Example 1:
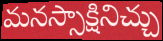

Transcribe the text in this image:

మనస్సాక్షినిచ్చు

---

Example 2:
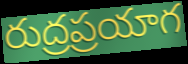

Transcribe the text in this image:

రుద్రప్రయాగ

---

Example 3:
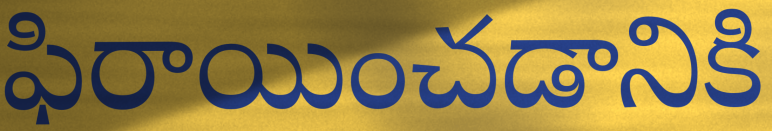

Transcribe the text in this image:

ఫిరాయించడానికి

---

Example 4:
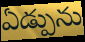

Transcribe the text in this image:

ఏడ్పును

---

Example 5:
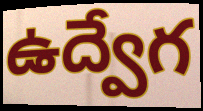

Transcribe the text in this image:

ఉద్వేగ